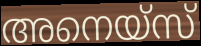
അനെയ്സ്